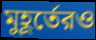
মুহূর্তেরও